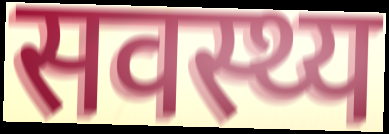
सवस्थ्य